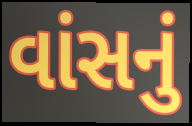
વાંસનું